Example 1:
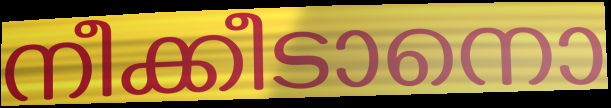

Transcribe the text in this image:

നീക്കീടാനൊ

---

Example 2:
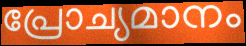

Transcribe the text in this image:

പ്രോച്യമാനം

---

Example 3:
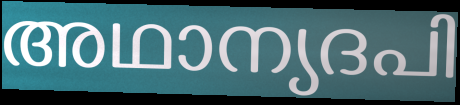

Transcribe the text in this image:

അഥാന്യദപി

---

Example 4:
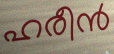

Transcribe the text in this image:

ഹരീൻ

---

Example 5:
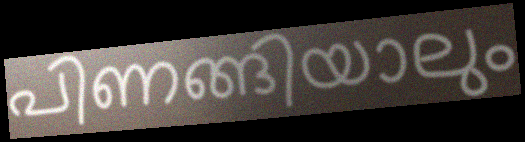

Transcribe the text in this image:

പിണങ്ങിയാലും